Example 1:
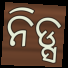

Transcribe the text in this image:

ନିଡ୍ସ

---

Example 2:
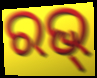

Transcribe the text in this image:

ରଭ୍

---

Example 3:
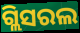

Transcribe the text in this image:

ଗ୍ଲିସରଲ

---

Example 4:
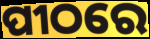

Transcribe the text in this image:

ପୀଠରେ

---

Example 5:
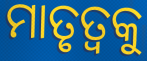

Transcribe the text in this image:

ମାତୃତ୍ବକୁ